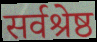
सर्वश्रेष्ठ